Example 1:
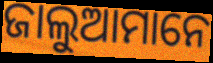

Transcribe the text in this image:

ଜାଲୁଆମାନେ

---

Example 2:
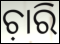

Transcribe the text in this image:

ଚ଼ାରି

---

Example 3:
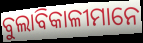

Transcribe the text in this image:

ବୁଲାବିକାଳୀମାନେ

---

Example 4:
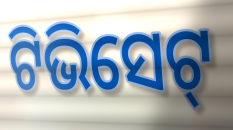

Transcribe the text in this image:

ଟିଭିସେଟ୍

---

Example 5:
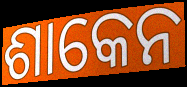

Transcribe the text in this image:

ଶାକେନ